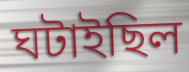
ঘটাইছিল